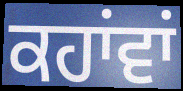
ਕਹਾਂਵਾਂ